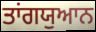
ਤਾਂਗਯੁਆਨ